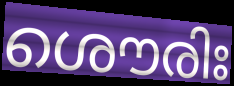
ശൌരിഃ